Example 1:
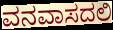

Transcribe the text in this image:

ವನವಾಸದಲಿ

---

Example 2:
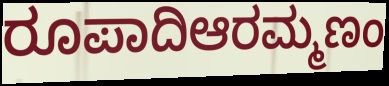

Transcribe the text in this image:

ರೂಪಾದಿಆರಮ್ಮಣಂ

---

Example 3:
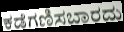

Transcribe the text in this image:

ಕಡೆಗಣಿಸಬಾರದು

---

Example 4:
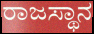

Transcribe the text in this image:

ರಾಜಸ್ಥಾನ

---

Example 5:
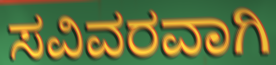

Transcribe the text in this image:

ಸವಿವರವಾಗಿ